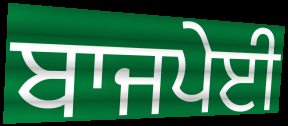
ਬਾਜਪੇਈ